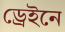
ড্রেইনে